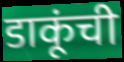
डाकूंची